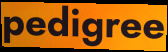
pedigree